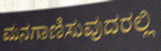
ಮನಗಾಣಿಸುವುದರಲ್ಲಿ